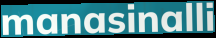
manasinalli